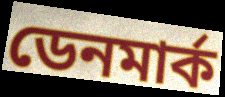
ডেনমাৰ্ক